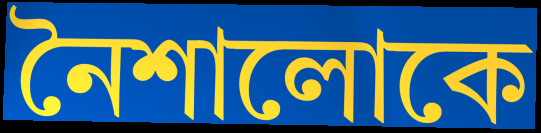
নৈশালোকে